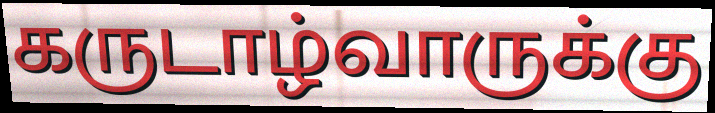
கருடாழ்வாருக்கு